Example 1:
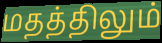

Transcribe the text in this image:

மதத்திலும்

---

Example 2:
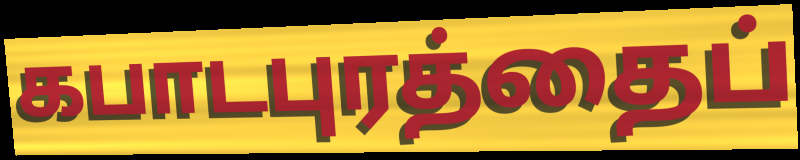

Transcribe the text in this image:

கபாடபுரத்தைப்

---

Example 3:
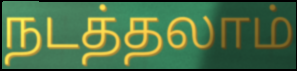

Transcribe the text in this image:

நடத்தலாம்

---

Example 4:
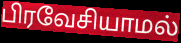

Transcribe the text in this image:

பிரவேசியாமல்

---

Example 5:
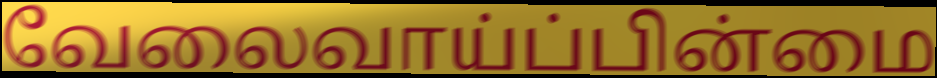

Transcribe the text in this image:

வேலைவாய்ப்பின்மை